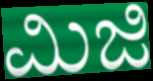
ಮಿಜಿ